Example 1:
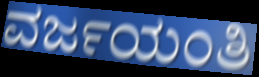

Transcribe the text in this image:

ವರ್ಜಯಂತಿ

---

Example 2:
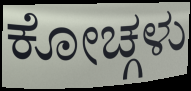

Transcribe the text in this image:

ಕೋಚ್ಗಳು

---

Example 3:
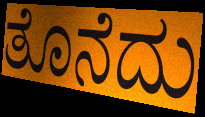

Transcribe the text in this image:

ತೊನೆದು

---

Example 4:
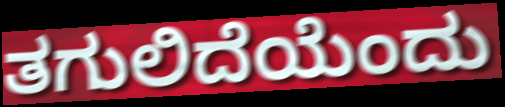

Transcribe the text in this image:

ತಗುಲಿದೆಯೆಂದು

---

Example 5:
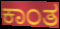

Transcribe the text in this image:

ಕಾಂತ